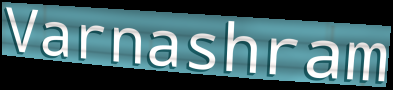
Varnashram